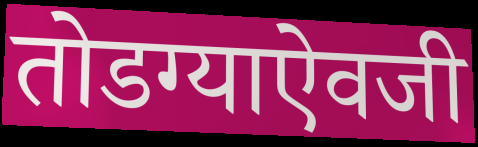
तोडग्याऐवजी